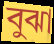
বুঝা